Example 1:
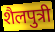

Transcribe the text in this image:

शैलपुत्री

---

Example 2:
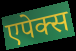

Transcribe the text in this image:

एपेक्स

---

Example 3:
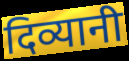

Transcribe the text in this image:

दिव्यानी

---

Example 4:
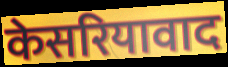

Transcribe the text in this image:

केसरियावाद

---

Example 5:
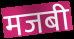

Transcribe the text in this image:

मजबी